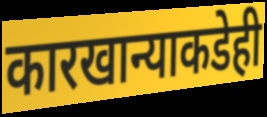
कारखान्याकडेही